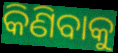
କିଣିବାକୁ